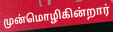
முன்மொழிகின்றார்